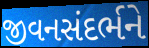
જીવનસંદર્ભને